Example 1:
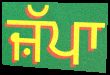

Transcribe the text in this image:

ਜ਼ੱਪਾ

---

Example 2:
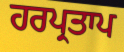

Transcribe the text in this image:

ਹਰਪ੍ਰਤਾਪ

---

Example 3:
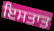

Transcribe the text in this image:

ਇਸਤਾਤ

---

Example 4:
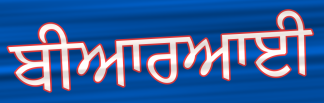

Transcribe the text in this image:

ਬੀਆਰਆਈ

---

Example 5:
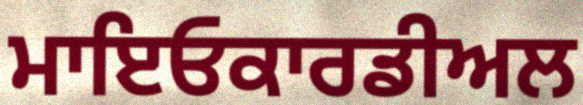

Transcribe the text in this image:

ਮਾਇਓਕਾਰਡੀਅਲ